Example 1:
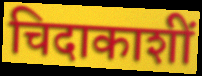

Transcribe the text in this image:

चिदाकाशीं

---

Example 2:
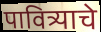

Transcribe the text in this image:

पावित्र्याचे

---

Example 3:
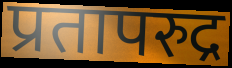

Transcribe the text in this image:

प्रतापरुद्र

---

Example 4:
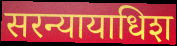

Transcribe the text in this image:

सरन्यायाधिश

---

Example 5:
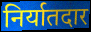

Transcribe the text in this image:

निर्यातदार